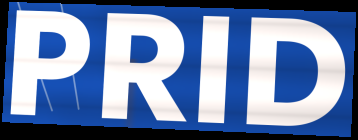
PRID